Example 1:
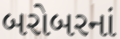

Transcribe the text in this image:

બરોબરનાં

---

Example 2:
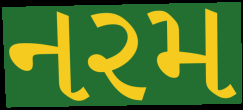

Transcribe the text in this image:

નરમ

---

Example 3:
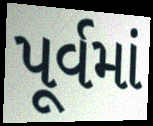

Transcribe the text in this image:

પૂર્વમાં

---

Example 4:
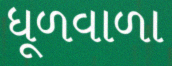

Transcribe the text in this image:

ધૂળવાળા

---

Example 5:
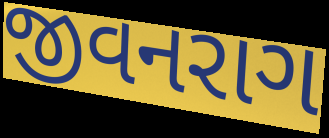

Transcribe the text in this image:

જીવનરાગ